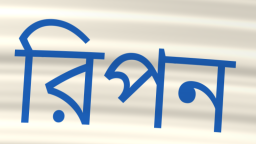
রিপন